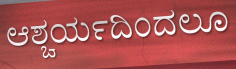
ಆಶ್ಚರ್ಯದಿಂದಲೂ